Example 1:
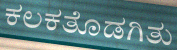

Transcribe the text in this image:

ಕಲಕತೊಡಗಿತು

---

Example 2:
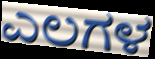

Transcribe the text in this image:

ಎಲಗಳ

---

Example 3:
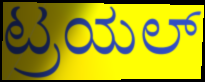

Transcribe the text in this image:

ಟ್ರಯಲ್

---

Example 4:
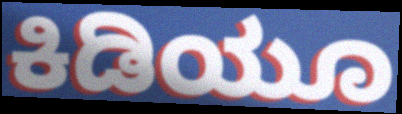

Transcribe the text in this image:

ಕಿಡಿಯೂ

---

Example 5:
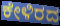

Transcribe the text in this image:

ಕೇಳಿರದ